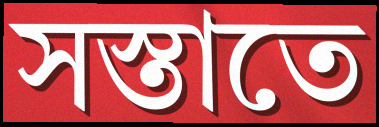
সস্তাতে